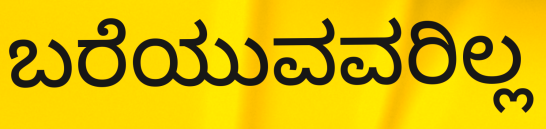
ಬರೆಯುವವರಿಲ್ಲ